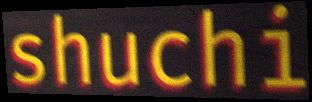
shuchi